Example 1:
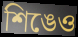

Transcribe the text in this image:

শিঙেও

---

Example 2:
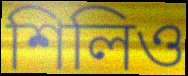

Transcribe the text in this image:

শিলিও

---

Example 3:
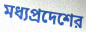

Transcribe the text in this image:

মধ্যপ্রদেশের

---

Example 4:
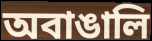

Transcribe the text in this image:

অবাঙালি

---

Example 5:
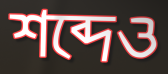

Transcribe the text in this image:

শব্দেও